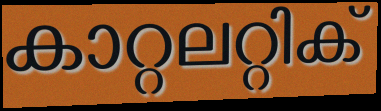
കാറ്റലറ്റിക്